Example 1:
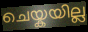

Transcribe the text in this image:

ചെയ്കയില്ല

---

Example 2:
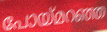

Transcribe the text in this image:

പോയ്മറഞ്ഞ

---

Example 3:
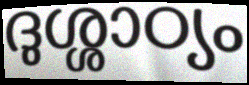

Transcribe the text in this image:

ദുശ്ശാഠ്യം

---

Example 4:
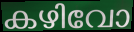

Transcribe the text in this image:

കഴിവോ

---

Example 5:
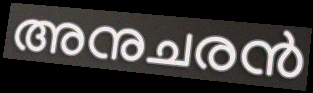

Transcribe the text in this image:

അനുചരൻ